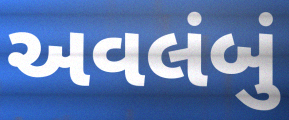
અવલંબું